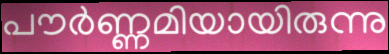
പൗർണ്ണമിയായിരുന്നു